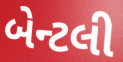
બેન્ટલી